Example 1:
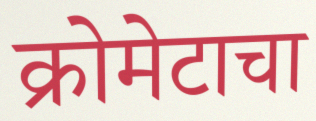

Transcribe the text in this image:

क्रोमेटाचा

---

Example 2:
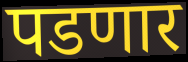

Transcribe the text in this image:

पडणार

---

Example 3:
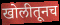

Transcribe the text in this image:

खोलीतूनच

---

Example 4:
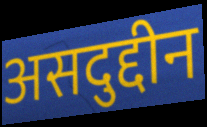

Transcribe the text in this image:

असदुद्दीन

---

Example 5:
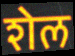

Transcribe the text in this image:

शेल